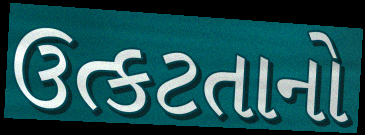
ઉત્કટતાનો